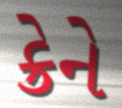
ક્રેને